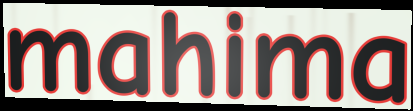
mahima